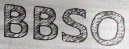
BBSO